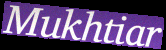
Mukhtiar